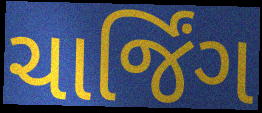
ચાર્જિંગ